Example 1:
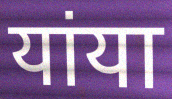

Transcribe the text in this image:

यांया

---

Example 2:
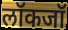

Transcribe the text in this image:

लॉकजॉ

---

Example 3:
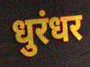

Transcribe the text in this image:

धुरंधर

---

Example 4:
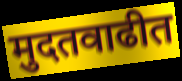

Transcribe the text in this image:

मुदतवाढीत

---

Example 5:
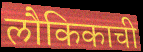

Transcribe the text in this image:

लौकिकाची